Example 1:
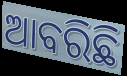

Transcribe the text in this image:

ଆବରିଛି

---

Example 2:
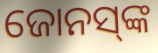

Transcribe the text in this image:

ଜୋନସ୍‌ଙ୍କ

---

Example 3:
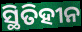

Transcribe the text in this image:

ସ୍ଥିତିହୀନ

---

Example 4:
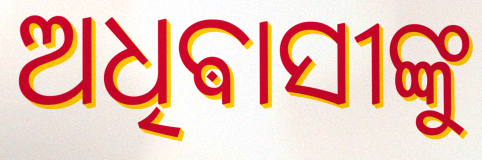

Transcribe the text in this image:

ଅଧିଵାସୀଙ୍କୁ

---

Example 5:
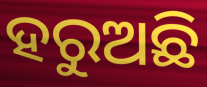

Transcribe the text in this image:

ହରୁଅଛି